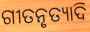
ଗୀତନୃତ୍ୟାଦି